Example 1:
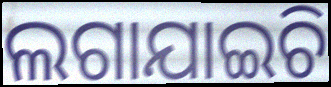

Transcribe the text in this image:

ଲଗାଯାଇଚି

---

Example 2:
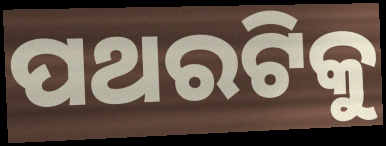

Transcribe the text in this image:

ପଥରଟିକୁ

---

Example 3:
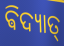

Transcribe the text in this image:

ଵିଦ୍ଯାତ୍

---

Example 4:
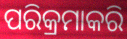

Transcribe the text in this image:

ପରିକ୍ରମାକରି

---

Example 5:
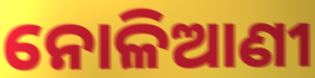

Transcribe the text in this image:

ନୋଳିଆଣୀ